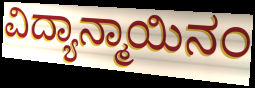
ವಿದ್ಯಾನ್ಮಾಯಿನಂ